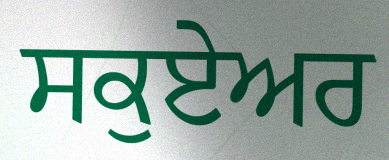
ਸਕੁਏਅਰ